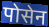
पोसेन